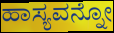
ಹಾಸ್ಯವನ್ನೋ